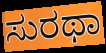
ಸುರಥಾ